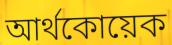
আর্থকোয়েক